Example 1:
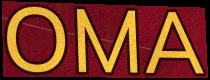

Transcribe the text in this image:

OMA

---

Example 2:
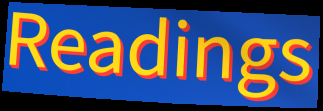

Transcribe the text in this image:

Readings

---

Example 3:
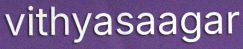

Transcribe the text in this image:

vithyasaagar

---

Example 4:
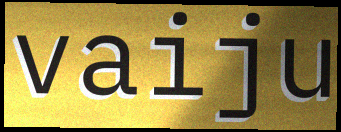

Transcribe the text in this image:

vaiju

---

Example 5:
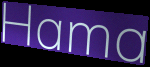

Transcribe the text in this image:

Hama